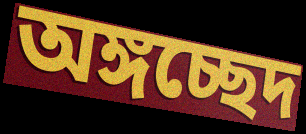
অঙ্গচ্ছেদ